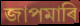
জাপমাৰি